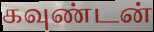
கவுண்டன்